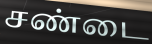
சண்டை